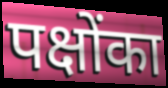
पक्षोंका